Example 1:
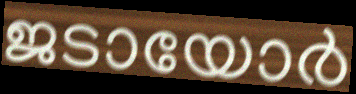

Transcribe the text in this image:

ജടായോർ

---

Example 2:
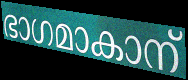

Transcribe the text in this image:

ഭാഗമാകാന്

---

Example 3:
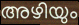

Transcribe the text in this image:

അഴിയും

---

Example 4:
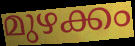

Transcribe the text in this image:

മുഴക്കം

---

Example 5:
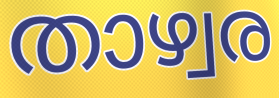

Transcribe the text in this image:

താഴ്വര